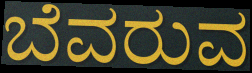
ಬೆವರುವ